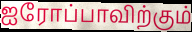
ஐரோப்பாவிற்கும்